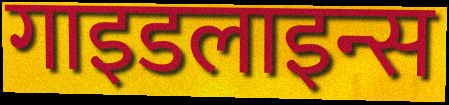
गाइडलाइन्स